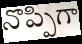
నొప్పిగా